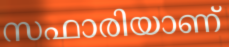
സഫാരിയാണ്